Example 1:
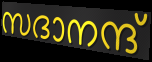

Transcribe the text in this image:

സദാനന്ദ്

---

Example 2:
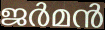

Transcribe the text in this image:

ജർമൻ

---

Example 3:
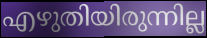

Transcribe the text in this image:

എഴുതിയിരുന്നില്ല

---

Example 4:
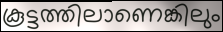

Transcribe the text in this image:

കൂട്ടത്തിലാണെങ്കിലും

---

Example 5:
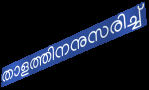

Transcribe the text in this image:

താളത്തിനനുസരിച്ച്